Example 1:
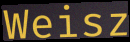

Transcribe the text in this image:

Weisz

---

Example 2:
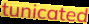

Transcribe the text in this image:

tunicated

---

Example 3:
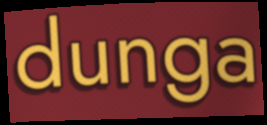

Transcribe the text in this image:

dunga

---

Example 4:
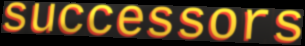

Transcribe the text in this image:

successors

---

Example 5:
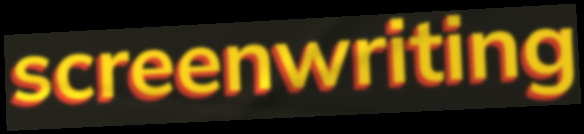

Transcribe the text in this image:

screenwriting